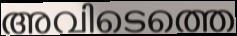
അവിടെത്തെ